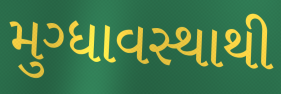
મુગ્ધાવસ્થાથી